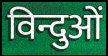
विन्दुओं